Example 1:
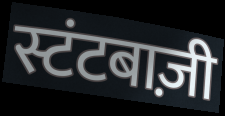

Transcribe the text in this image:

स्टंटबाज़ी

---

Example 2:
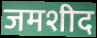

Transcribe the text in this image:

जमशीद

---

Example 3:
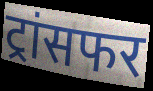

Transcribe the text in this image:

ट्रांसफर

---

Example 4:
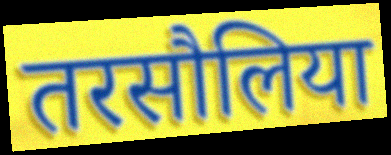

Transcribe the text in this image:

तरसौलिया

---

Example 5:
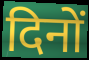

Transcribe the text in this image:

दिनों